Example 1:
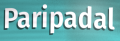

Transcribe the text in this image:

Paripadal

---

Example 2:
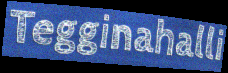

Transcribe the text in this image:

Tegginahalli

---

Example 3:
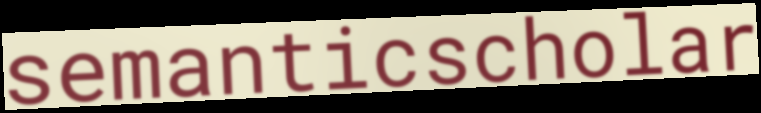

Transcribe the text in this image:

semanticscholar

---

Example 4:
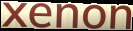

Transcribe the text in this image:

xenon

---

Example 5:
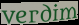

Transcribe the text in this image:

verdim